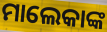
ମାଲେକାଙ୍କ